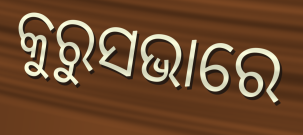
କୁରୁସଭାରେ